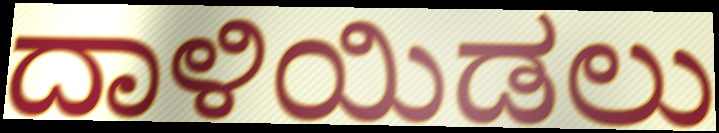
ದಾಳಿಯಿಡಲು